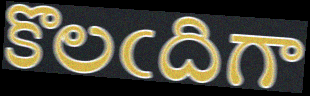
కొలఁదిగా